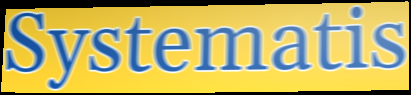
Systematis